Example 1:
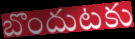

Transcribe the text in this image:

బొందుటకు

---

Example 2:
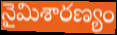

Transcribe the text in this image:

నైమిశారణ్యం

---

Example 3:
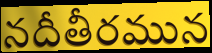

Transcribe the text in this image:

నదీతీరమున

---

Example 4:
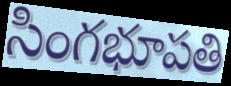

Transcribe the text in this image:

సింగభూపతి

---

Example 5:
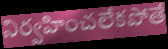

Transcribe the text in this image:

నిర్వహించలేకపోతే